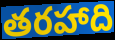
తరహాది